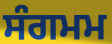
ਸੰਗਮਮ